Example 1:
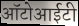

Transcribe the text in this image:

ऑटोआईटी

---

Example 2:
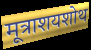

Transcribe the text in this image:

मूत्राशयशोथ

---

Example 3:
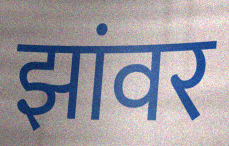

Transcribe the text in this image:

झांवर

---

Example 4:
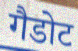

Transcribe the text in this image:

गैडोट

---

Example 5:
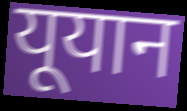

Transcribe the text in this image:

यूयान